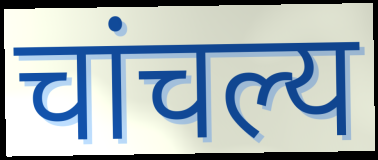
चांचल्य